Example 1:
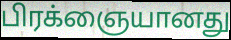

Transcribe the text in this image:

பிரக்ஞையானது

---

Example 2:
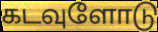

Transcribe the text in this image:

கடவுளோடு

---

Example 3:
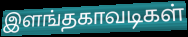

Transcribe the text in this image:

இளங்தகாவடிகள்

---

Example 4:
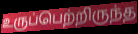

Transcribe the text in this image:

உருப்பெற்றிருந்த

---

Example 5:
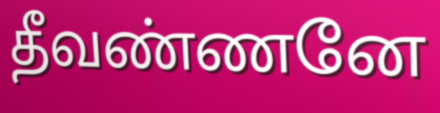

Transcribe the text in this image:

தீவண்ணனே